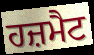
ਹਜ਼ਮੈਟ